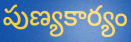
పుణ్యకార్యం